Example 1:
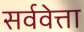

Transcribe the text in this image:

सर्ववेत्ता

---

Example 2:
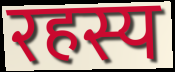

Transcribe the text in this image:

रहस्य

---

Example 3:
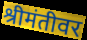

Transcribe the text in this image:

श्रीमंतीवर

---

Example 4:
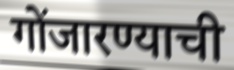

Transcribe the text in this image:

गोंजारण्याची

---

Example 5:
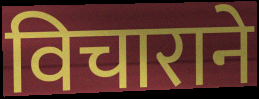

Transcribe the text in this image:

विचाराने